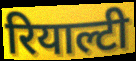
रियाल्टी